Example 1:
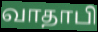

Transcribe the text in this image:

வாதாபி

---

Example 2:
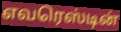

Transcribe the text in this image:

எவரெஸ்டின்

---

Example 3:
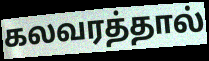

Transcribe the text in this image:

கலவரத்தால்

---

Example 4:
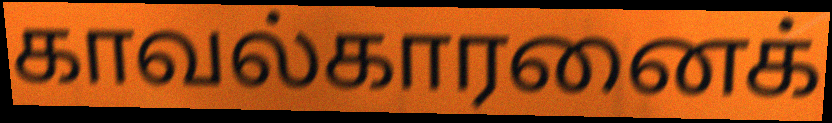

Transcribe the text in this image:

காவல்காரனைக்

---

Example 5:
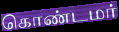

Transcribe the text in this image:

கொண்டமர்